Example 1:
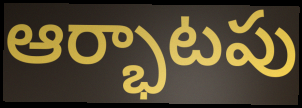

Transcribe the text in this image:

ఆర్భాటపు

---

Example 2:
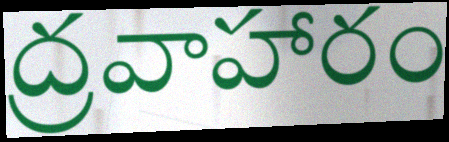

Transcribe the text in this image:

ద్రవాహారం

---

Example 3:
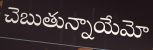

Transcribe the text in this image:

చెబుతున్నాయేమో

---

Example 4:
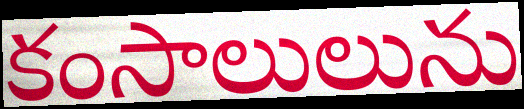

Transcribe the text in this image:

కంసాలులును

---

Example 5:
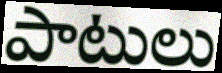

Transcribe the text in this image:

పాటులు